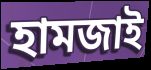
হামজাই